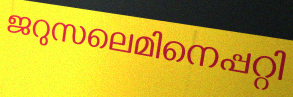
ജറുസലെമിനെപ്പറ്റി